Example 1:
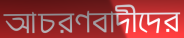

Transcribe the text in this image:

আচরণবাদীদের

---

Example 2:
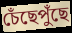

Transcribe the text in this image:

চেঁছেপুঁছে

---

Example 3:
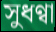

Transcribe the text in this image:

সুধণ্বা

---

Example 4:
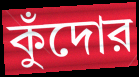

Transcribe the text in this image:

কুঁদোর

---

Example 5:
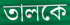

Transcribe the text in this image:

তালকে